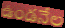
ఉండనేల